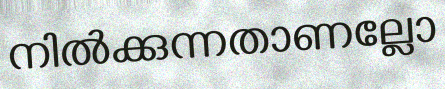
നിൽക്കുന്നതാണല്ലോ